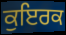
ਕੁਇਰਕ